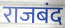
राजबंद